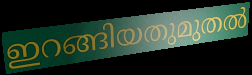
ഇറങ്ങിയതുമുതൽ